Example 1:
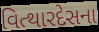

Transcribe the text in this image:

વિત્થારદેસના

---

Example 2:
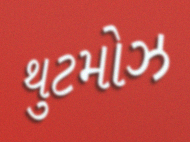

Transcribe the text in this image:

થુટમોઝ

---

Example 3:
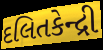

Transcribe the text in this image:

દલિતકેન્દ્રી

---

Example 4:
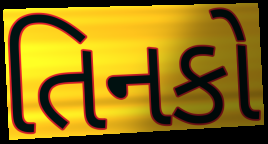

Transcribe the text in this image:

તિનકો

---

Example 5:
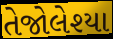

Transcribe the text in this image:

તેજોલેશ્યા